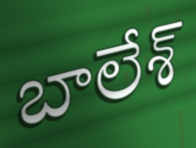
బాలేశ్